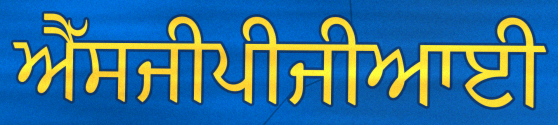
ਐੱਸਜੀਪੀਜੀਆਈ